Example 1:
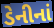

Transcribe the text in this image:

ડેનીનાં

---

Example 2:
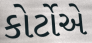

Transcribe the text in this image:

કોર્ટોએ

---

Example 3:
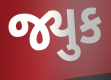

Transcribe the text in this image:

જ્યુક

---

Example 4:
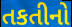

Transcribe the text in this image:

તકતીનો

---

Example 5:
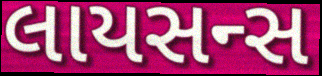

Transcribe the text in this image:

લાયસન્સ